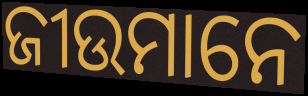
ଜୀଉମାନେ